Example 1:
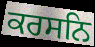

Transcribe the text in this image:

ਕਰਸਨਿ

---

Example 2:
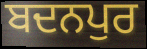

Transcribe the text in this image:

ਬਦਨਪੁਰ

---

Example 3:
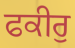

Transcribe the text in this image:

ਫਕੀਰੁ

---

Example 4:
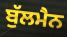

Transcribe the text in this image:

ਬੁੱਲਮੈਨ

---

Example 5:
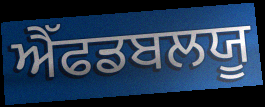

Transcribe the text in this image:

ਐੱਫਡਬਲਯੂ